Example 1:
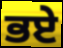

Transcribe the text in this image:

ਭਏ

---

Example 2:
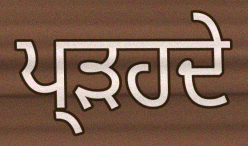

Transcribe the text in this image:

ਪ੍ੜਹਦੇ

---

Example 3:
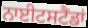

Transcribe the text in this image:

ਨਾਈਟਸਟੈਂਡਾਂ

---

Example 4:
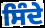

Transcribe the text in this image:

ਸਿੰਦੇ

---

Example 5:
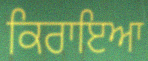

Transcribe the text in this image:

ਕਿਰਾਇਆ